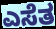
ಎಸೆತ